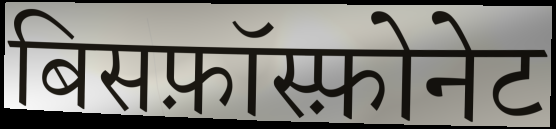
बिसफ़ॉस्फ़ोनेट